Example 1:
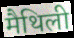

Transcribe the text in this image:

मैथिली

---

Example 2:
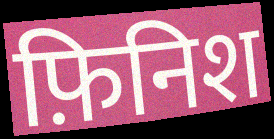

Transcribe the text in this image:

फ़िनिश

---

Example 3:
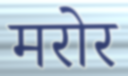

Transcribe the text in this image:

मरोर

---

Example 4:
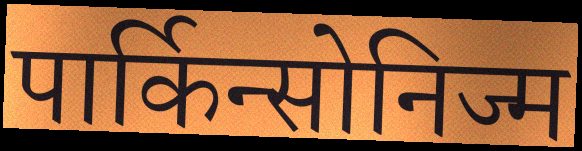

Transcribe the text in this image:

पार्किन्सोनिज्म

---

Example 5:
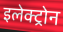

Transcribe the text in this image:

इलेक्ट्रोन